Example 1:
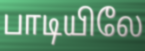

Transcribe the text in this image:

பாடியிலே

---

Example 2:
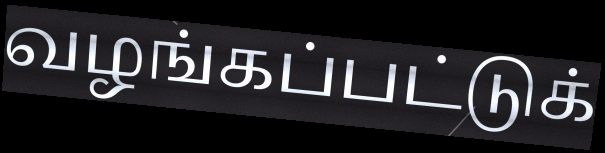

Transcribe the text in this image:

வழங்கப்பட்டுக்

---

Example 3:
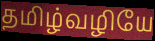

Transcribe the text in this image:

தமிழ்வழியே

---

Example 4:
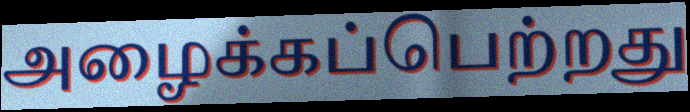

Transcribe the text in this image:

அழைக்கப்பெற்றது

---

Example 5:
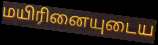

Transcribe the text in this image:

மயிரினையுடைய